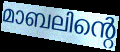
മാബലിന്റെ